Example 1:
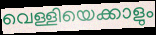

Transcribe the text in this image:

വെള്ളിയെക്കാളും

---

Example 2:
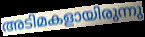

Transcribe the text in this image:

അടിമകളായിരുന്നു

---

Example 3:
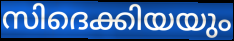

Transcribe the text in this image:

സിദെക്കിയയും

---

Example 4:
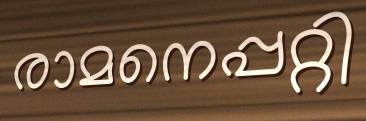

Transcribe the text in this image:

രാമനെപ്പറ്റി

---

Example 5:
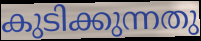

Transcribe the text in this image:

കുടിക്കുന്നതു